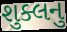
શુક્લનુ